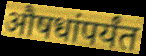
औषधांपर्यंत